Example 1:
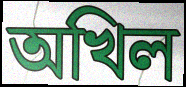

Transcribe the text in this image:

অখিল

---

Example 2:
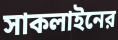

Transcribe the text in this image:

সাকলাইনের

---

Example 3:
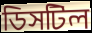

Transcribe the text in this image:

ডিসটিল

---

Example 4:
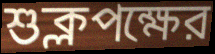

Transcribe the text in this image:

শুক্লপক্ষের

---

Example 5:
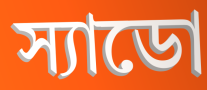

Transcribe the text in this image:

স্যাডো